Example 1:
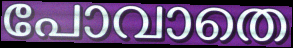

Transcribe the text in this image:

പോവാതെ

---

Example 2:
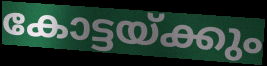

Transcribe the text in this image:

കോട്ടയ്ക്കും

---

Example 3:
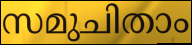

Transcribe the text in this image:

സമുചിതാം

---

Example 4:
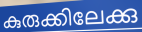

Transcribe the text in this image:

കുരുക്കിലേക്കു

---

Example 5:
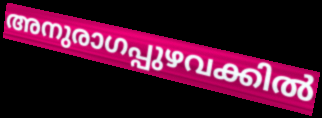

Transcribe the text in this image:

അനുരാഗപ്പുഴവക്കിൽ